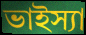
ভাইস্যা